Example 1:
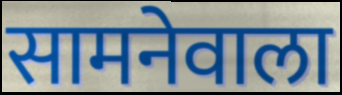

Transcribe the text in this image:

सामनेवाला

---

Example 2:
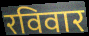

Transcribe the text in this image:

रविवार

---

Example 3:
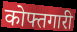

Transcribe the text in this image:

कोफ्तगारी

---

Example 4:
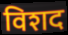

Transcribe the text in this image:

विशद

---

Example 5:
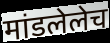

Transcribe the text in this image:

मांडलेलेच